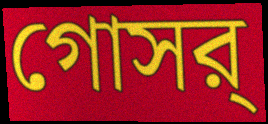
গোসর্